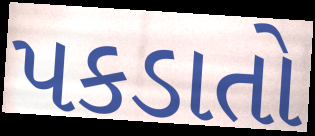
પકડાતો